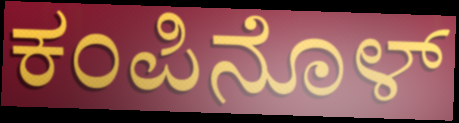
ಕಂಪಿನೊಳ್